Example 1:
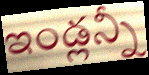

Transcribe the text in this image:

ఇండ్లన్నీ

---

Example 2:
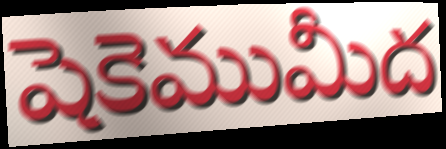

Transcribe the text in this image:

షెకెముమీద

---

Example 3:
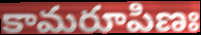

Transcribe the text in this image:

కామరూపిణః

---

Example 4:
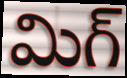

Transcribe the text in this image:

మిగ్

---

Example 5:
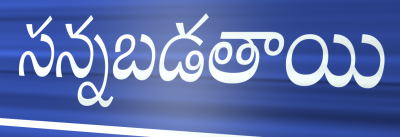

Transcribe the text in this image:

సన్నబడతాయి